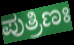
ಪುತ್ರಿಣಃ